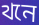
থনে